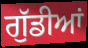
ਗੁੱਡੀਆਂ